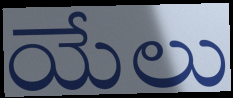
యేలు